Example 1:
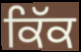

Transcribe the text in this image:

ਕਿੱਕ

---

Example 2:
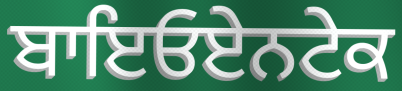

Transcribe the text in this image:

ਬਾਇਓਏਨਟੇਕ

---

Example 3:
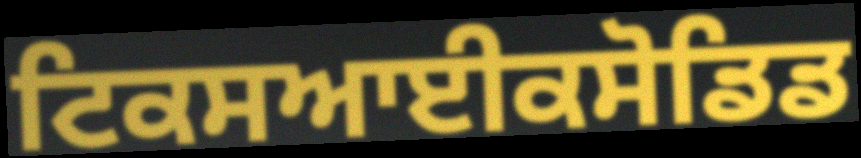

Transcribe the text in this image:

ਟਿਕਸਆਈਕਸੋਡਿਡ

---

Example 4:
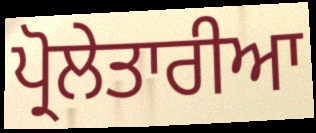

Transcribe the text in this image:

ਪ੍ਰੋਲੇਤਾਰੀਆ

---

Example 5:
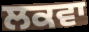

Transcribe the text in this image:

ਲਕਵਾ